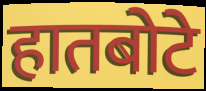
हातबोटे